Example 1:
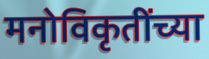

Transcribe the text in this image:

मनोविकृतींच्या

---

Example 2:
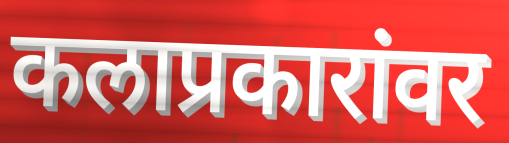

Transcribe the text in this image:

कलाप्रकारांवर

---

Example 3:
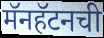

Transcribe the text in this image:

मॅनहॅटनची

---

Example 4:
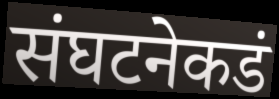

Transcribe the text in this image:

संघटनेकडं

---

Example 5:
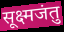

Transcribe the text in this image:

सूक्ष्मजंतु